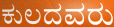
ಕುಲದವರು